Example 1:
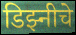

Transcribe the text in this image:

डिझ्नीचे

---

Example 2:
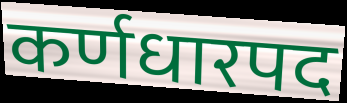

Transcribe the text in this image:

कर्णधारपद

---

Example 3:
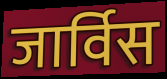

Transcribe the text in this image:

जार्विस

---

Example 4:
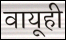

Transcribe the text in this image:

वायूही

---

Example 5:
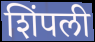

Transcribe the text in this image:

शिंपली